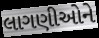
લાગણીઓને